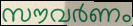
സൗവർണം